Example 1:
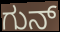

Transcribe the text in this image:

ಗುನ್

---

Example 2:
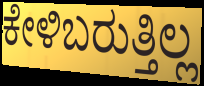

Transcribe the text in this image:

ಕೇಳಿಬರುತ್ತಿಲ್ಲ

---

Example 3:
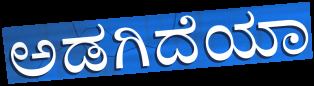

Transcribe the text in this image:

ಅಡಗಿದೆಯಾ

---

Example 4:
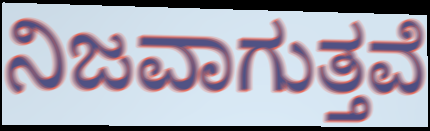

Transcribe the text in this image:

ನಿಜವಾಗುತ್ತವೆ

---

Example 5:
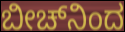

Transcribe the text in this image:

ಬೀಚ್‌ನಿಂದ